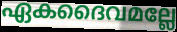
ഏകദൈവമല്ലേ